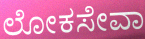
ಲೋಕಸೇವಾ